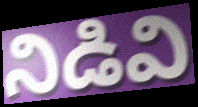
నిడివి